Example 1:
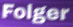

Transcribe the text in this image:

Folger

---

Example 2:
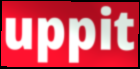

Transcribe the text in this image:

uppit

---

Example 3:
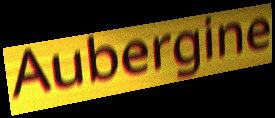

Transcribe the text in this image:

Aubergine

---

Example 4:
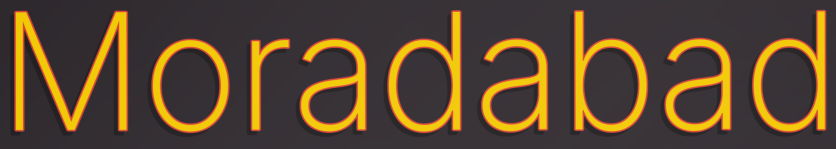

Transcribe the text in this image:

Moradabad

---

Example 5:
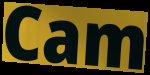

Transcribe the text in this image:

Cam